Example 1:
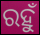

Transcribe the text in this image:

ରହୁଁ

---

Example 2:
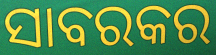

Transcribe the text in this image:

ସାବରକର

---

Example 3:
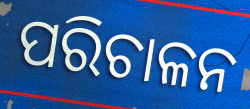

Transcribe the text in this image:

ପରିଚାଳନ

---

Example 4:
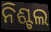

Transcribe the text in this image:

ନିଶ୍ଚଲ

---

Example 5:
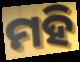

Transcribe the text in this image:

ମହି